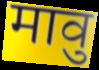
मावु